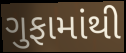
ગુફામાંથી